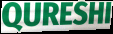
QURESHI